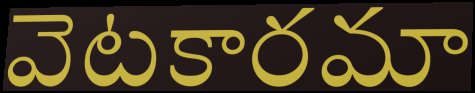
వెటకారమా